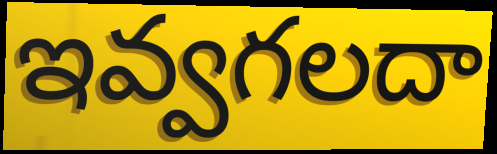
ఇవ్వగలదా